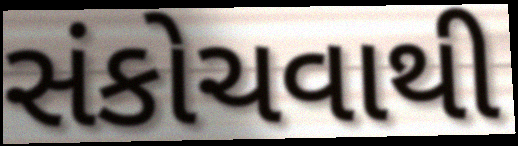
સંકોચવાથી